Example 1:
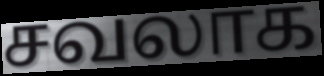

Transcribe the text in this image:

சவலாக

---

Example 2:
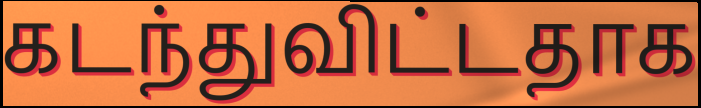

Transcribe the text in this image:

கடந்துவிட்டதாக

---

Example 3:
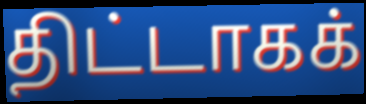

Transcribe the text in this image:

திட்டாகக்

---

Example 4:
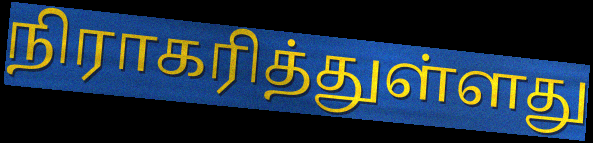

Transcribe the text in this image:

நிராகரித்துள்ளது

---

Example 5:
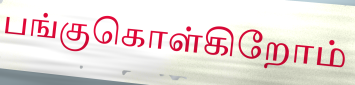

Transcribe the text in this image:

பங்குகொள்கிறோம்